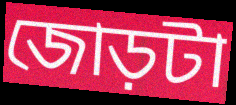
জোড়টা